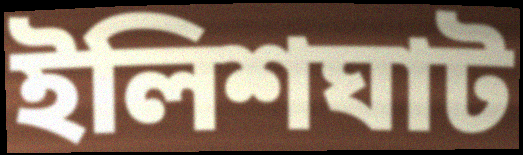
ইলিশঘাট